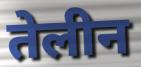
तेलीन